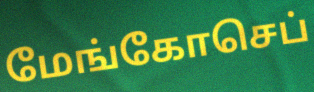
மேங்கோசெப்